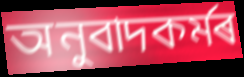
অনুবাদকৰ্মৰ